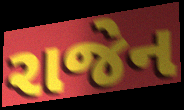
રાજેન